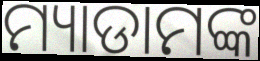
ମ୍ୟାଡାମଙ୍କ